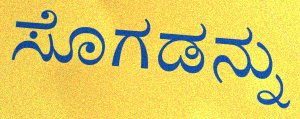
ಸೊಗಡನ್ನು